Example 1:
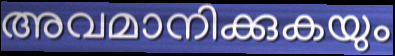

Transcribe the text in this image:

അവമാനിക്കുകയും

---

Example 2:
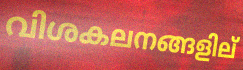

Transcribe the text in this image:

വിശകലനങ്ങളില്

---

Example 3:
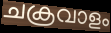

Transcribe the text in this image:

ചക്രവാളം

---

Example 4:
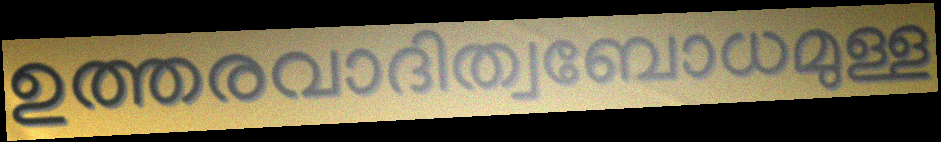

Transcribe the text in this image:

ഉത്തരവാദിത്വബോധമുള്ള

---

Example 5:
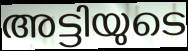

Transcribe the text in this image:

അട്ടിയുടെ